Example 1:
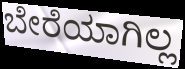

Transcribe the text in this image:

ಬೇರೆಯಾಗಿಲ್ಲ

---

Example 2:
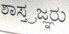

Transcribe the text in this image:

ಶಾಸ್ತ್ರಜ್ಞರು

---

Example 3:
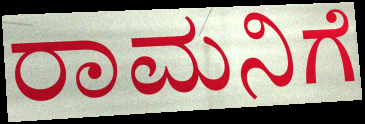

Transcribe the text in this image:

ರಾಮನಿಗೆ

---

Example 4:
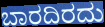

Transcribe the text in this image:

ಬಾರದಿರದು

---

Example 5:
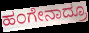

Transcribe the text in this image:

ಹಂಗೇನಾದ್ರೂ